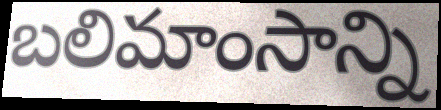
బలిమాంసాన్ని